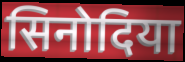
सिनोदिया